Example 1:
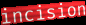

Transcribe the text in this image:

incision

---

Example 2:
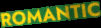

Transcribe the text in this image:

ROMANTIC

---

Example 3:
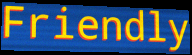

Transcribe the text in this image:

Friendly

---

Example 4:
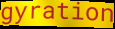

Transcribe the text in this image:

gyration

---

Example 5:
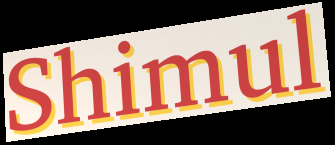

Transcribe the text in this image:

Shimul